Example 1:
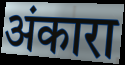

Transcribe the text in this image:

अंकारा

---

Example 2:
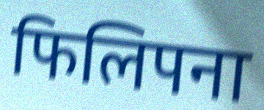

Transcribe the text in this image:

फिलिपना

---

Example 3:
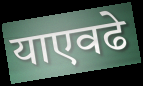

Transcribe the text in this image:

याएवढे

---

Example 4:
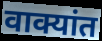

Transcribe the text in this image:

वाक्यांत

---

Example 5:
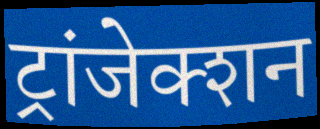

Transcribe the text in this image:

ट्रांजेक्शन